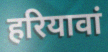
हरियावां